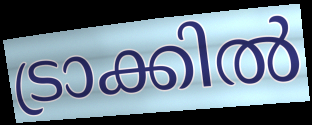
ട്രാക്കിൽ